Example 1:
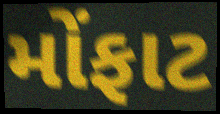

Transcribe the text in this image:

મોંફાટ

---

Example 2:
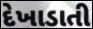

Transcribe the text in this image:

દેખાડાતી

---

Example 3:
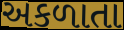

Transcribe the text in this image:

અકળાતા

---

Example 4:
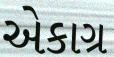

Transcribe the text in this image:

એકાગ્ર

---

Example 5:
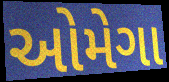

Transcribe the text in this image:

ઓમેગા